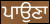
ਪਾਉਣਾ